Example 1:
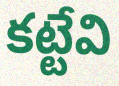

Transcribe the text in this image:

కట్టేవి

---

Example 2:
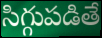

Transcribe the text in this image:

సిగ్గుపడితే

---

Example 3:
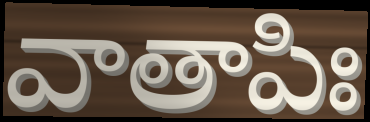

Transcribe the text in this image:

వాతాపిః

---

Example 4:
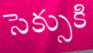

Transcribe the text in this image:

సెక్సుకి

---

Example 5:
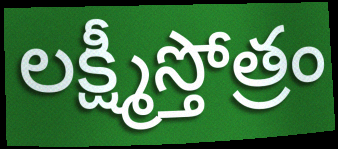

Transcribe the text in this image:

లక్ష్మీస్తోత్రం